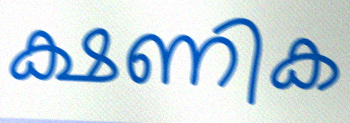
ക്ഷണിക